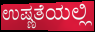
ಉಷ್ಣತೆಯಲ್ಲಿ